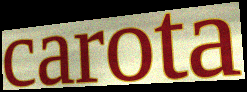
carota